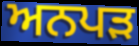
ਅਨਪੜ